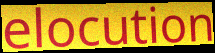
elocution